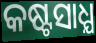
କଷ୍ଟସାଧ୍ଯ